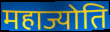
महाज्योति